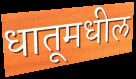
धातूमधील